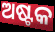
ଅଷ୍ଟକ